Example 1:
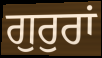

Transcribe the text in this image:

ਗੁਰੁਰਾਂ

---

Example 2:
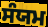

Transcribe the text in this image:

ਸੰਯਮ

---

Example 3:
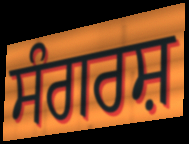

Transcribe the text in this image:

ਸੰਗਰਸ਼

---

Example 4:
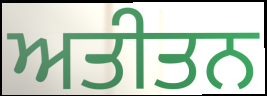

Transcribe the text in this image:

ਅਤੀਤਨ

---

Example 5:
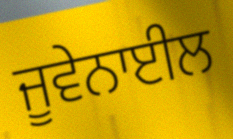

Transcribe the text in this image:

ਜੂਵੇਨਾਈਲ